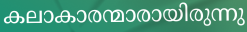
കലാകാരന്മാരായിരുന്നു